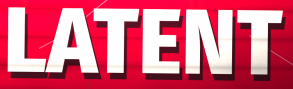
LATENT